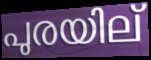
പുരയില്